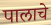
पालाचे